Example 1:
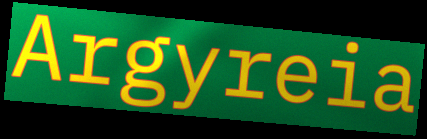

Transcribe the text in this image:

Argyreia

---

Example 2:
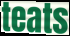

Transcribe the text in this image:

teats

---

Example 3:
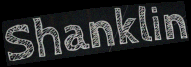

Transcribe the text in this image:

Shanklin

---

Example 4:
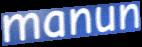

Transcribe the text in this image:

manun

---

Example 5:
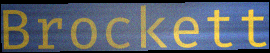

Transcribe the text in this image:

Brockett